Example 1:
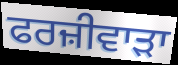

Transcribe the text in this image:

ਫਰਜ਼ੀਵਾੜਾ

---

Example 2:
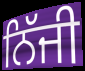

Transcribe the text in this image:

ਨਿੱਜੀ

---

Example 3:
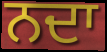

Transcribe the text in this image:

ਨਦਾ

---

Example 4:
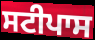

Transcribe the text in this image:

ਸਟੀਪਾਸ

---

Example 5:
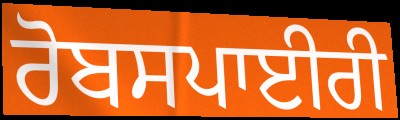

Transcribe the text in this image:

ਰੋਬਸਪਾਈਰੀ